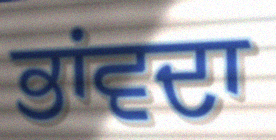
ਭਾਂਵਦਾ